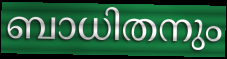
ബാധിതനും